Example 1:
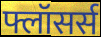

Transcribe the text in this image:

फ्लॉसर्स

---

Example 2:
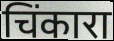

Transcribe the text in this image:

चिंकारा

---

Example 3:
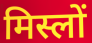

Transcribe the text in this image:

मिस्लों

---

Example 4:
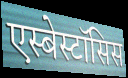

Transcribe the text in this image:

एस्बेस्टॉसिस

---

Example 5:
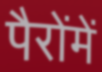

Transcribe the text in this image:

पैरोंमें